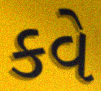
કવે